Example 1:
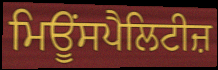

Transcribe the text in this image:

ਮਿਊਂਸਪੈਲਿਟੀਜ਼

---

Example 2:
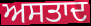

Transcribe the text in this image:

ਅਸਤਾਦ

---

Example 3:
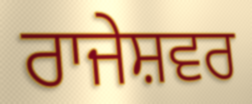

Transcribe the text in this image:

ਰਾਜੇਸ਼ਵਰ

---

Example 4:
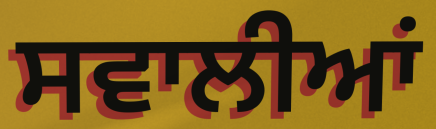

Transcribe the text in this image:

ਸਵਾਲੀਆਂ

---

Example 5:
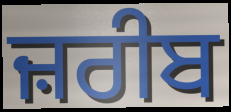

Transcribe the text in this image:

ਜ਼ਰੀਬ